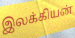
இலக்கியன்